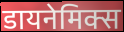
डायनेमिक्स